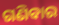
ଗଣିବାର